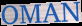
OMAN